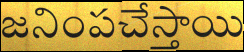
జనింపచేస్తాయి